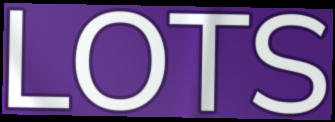
LOTS